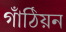
গাঁঠিয়ন